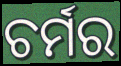
ଚର୍ମର